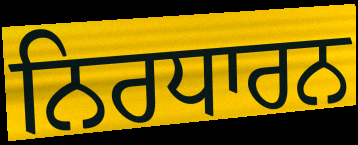
ਨਿਰਧਾਰਨ